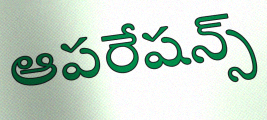
ఆపరేషన్స్